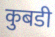
कुबडी